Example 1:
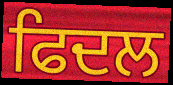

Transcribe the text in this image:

ਫਿਦਲ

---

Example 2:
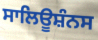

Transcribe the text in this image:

ਸਾਲਿਊਸ਼ੰਨਸ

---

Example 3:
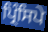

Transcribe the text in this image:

ਪ੍ਰਿੰਸਿਪੇ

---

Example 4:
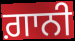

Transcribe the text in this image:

ਗ਼ਾਨੀ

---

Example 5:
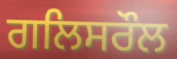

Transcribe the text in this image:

ਗਲਿਸਰੌਲ